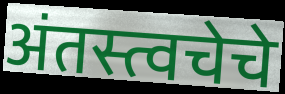
अंतस्त्वचेचे